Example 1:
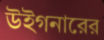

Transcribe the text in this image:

উইগনারের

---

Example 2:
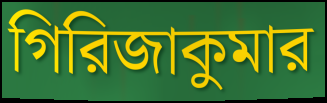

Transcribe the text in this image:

গিরিজাকুমার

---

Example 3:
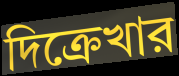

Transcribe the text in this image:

দিক্রেখার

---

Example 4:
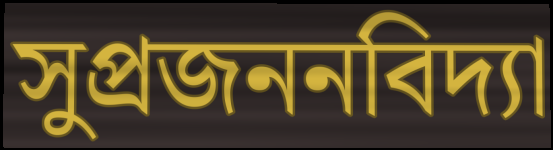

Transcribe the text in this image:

সুপ্রজননবিদ্যা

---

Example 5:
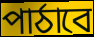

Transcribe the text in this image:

পাঠাবে